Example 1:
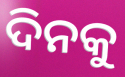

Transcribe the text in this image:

ଦିନକୁ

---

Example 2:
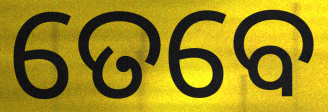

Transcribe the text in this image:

ତେବେ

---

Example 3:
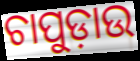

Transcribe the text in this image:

ଚାପୁଡ଼ାଉ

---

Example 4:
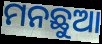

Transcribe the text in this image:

ମନଛୁଆ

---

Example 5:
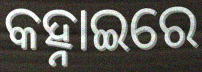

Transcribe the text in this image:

କହ୍ନାଇରେ